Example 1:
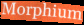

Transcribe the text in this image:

Morphium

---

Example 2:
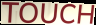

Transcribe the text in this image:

TOUCH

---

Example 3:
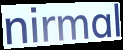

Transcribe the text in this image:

nirmal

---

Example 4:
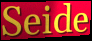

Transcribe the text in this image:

Seide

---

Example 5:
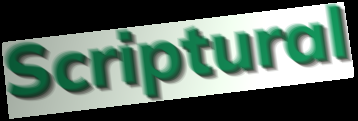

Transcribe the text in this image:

Scriptural